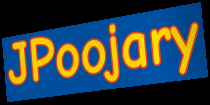
JPoojary